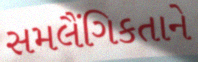
સમલૈંગિકતાને